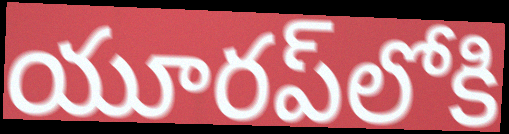
యూరప్‌లోకి